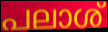
പലാശ്